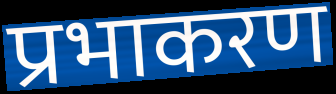
प्रभाकरण